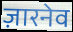
ज़ारनेव